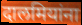
दालमियांना